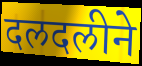
दलदलीने